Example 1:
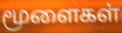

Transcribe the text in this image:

மூளைகள்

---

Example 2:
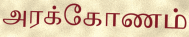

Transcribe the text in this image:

அரக்கோணம்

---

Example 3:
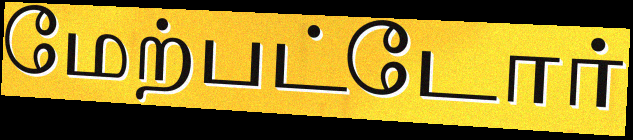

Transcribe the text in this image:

மேற்பட்டோர்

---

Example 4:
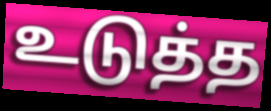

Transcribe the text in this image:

உடுத்த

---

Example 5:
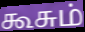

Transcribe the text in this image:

கூசும்